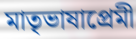
মাতৃভাষাপ্রেমী